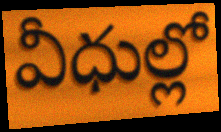
వీధుల్లో